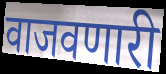
वाजवणारी